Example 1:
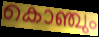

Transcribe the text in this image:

കൊഞ്ചും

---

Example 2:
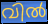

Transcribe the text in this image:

വിൽ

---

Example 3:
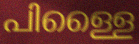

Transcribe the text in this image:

പിള്ളൈ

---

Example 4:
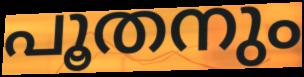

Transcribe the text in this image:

പൂതനും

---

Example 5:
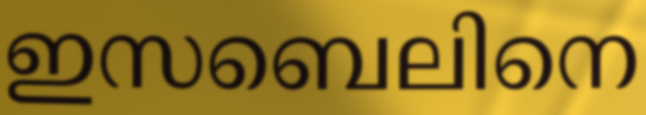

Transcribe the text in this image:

ഇസബെലിനെ